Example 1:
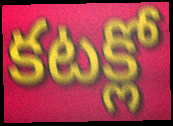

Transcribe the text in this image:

కటక్లో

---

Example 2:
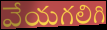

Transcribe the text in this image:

వేయగలిగి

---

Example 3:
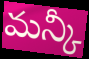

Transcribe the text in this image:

మన్కీ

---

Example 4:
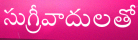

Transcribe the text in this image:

సుగ్రీవాదులతో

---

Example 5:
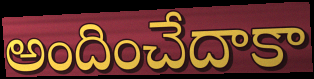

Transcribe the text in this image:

అందించేదాకా